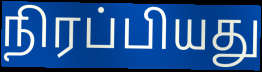
நிரப்பியது